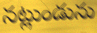
నట్లుండును